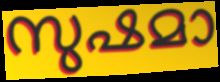
സുഷമാ